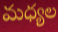
మధ్యల